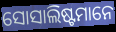
ସୋସାଲିଷ୍ଟମାନେ